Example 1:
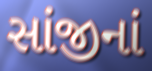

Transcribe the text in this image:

સાંજીનાં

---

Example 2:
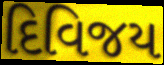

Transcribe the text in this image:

દિવિજય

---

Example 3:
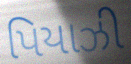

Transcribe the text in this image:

પિયાઝી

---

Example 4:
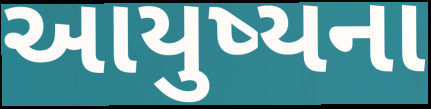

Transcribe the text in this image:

આયુષ્યના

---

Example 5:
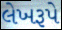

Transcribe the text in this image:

લેખરૂપે